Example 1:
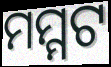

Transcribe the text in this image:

ମମ୍ମଟ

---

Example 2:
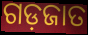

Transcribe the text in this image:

ଗଡ଼ଜାତ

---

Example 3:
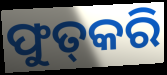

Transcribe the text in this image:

ଫୁତ୍‌କରି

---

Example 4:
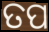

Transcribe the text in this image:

ତପ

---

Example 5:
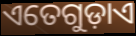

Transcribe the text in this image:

ଏତେଗୁଡ଼ାଏ